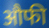
औफी